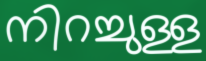
നിറച്ചുള്ള